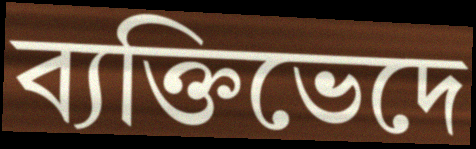
ব্যক্তিভেদে